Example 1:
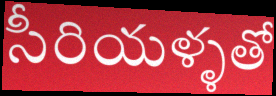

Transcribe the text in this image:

సీరియళ్ళతో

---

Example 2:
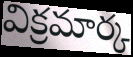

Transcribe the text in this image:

విక్రమార్క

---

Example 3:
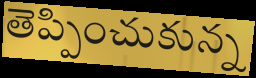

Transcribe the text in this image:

తెప్పించుకున్న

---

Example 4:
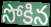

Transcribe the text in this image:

సోకిన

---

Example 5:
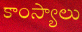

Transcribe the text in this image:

కాంస్యాలు